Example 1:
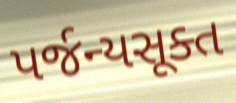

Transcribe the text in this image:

પર્જન્યસૂક્ત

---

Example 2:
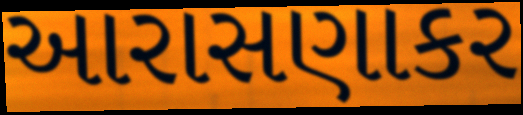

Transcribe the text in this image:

આરાસણાકર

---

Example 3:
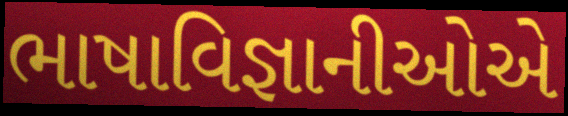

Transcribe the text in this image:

ભાષાવિજ્ઞાનીઓએ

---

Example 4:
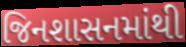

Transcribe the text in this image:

જિનશાસનમાંથી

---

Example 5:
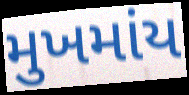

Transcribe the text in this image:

મુખમાંય